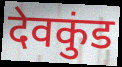
देवकुंड